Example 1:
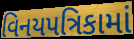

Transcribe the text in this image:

વિનયપત્રિકામાં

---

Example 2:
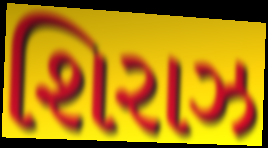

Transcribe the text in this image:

શિરાઝ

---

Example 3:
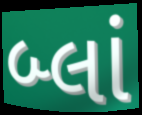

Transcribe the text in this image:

બ્લાં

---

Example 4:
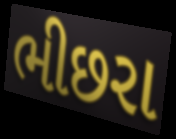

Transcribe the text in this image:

ભીછરા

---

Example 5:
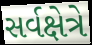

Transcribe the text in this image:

સર્વક્ષેત્રે